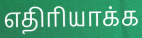
எதிரியாக்க